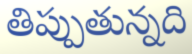
తిప్పుతున్నది